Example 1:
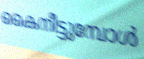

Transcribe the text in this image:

കൈനീട്ടുമ്പോൾ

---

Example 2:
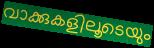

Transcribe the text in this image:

വാക്കുകളിലൂടെയും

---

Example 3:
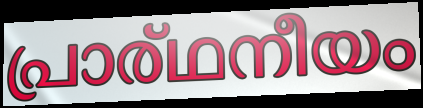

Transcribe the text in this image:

പ്രാര്ഥനീയം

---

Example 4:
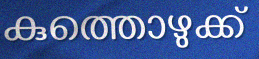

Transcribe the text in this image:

കുത്തൊഴുക്ക്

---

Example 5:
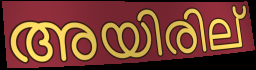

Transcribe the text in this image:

അയിരില്